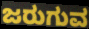
ಜರುಗುವ